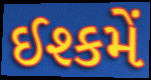
ઈશ્કમેં